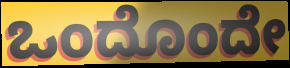
ಒಂದೊಂದೇ